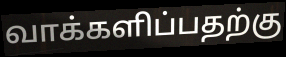
வாக்களிப்பதற்கு